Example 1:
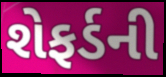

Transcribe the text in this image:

શેફર્ડની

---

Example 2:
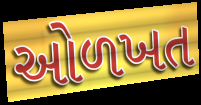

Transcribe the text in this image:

ઓળખત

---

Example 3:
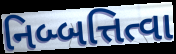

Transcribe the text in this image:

નિબ્બત્તિત્વા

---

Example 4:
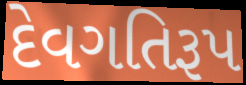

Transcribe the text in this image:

દેવગતિરૂપ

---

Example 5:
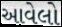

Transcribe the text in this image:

આવેલો